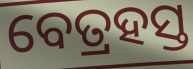
ବେତ୍ରହସ୍ତ